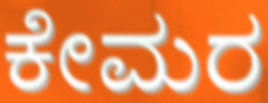
ಕೇಮರ